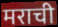
मराची